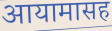
आयामासह